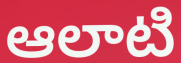
ఆలాటి